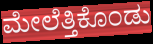
ಮೇಲೆತ್ತಿಕೊಂಡು